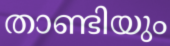
താണ്ടിയും